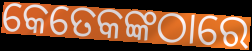
କେତେକଙ୍କଠାରେ